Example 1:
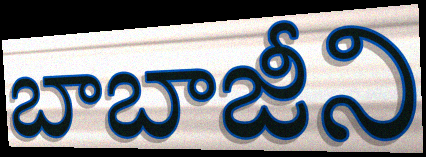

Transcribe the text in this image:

బాబాజీని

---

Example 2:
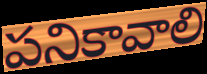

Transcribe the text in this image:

పనికావాలి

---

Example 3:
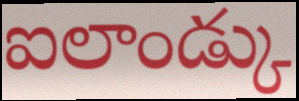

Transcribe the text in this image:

ఐలాండ్కు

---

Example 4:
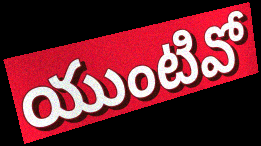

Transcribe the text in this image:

యుంటివో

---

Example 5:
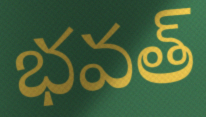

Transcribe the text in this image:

భవత్